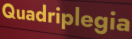
Quadriplegia